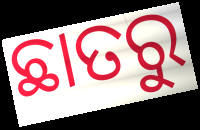
ଛାତରୁ